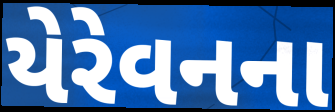
યેરેવનના